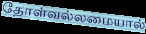
தோள்வல்லமையால்